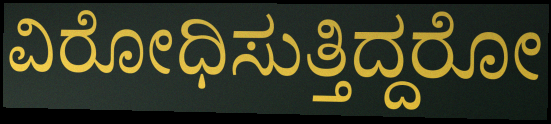
ವಿರೋಧಿಸುತ್ತಿದ್ದರೋ